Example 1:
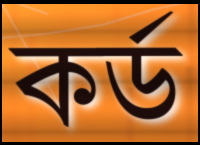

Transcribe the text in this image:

কৰ্ড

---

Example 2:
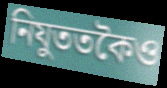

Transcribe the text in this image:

নিযুততকৈও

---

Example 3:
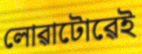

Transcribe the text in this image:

লোৱাটোৱেই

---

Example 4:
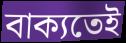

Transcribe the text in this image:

বাক্যতেই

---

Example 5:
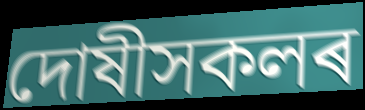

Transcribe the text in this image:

দোষীসকলৰ